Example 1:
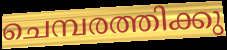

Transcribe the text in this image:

ചെമ്പരത്തിക്കു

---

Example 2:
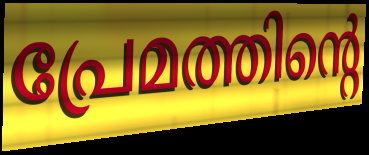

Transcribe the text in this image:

പ്രേമത്തിന്റെ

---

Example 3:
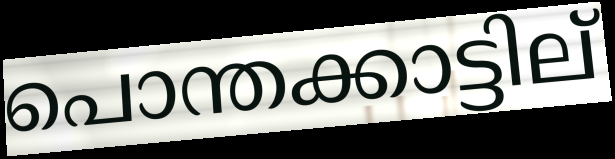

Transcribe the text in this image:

പൊന്തക്കാട്ടില്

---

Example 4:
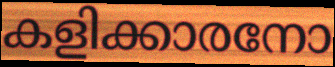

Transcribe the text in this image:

കളിക്കാരനോ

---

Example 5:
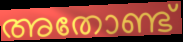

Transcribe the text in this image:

അതോണ്ട്